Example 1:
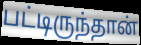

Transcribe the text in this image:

பட்டிருந்தான்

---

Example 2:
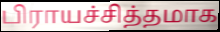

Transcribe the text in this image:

பிராயச்சித்தமாக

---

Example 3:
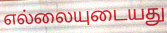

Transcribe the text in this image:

எல்லையுடையது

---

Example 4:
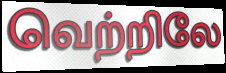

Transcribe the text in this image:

வெற்றிலே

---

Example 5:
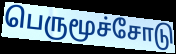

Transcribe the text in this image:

பெருமூச்சோடு